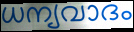
ധന്യവാദം